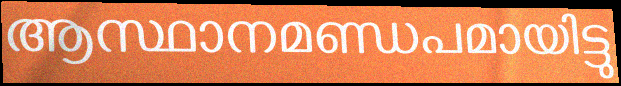
ആസ്ഥാനമണ്ഡപമായിട്ടു